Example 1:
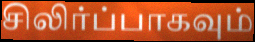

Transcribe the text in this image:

சிலிர்ப்பாகவும்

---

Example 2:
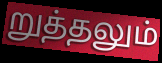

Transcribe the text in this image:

றுத்தலும்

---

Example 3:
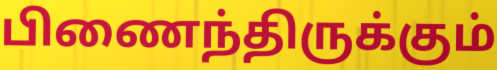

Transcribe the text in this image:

பிணைந்திருக்கும்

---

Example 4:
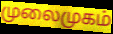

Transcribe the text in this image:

முலைமுகம்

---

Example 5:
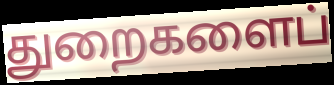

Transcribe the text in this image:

துறைகளைப்